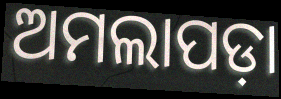
ଅମଲାପଡ଼ା